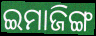
ଇମାଜିଙ୍ଗ